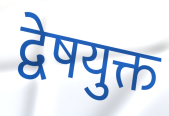
द्वेषयुक्त